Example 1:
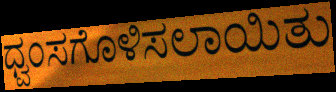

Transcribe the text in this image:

ಧ್ವಂಸಗೊಳಿಸಲಾಯಿತು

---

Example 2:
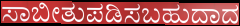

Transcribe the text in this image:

ಸಾಬೀತುಪಡಿಸಬಹುದಾದ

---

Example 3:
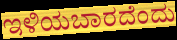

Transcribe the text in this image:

ಇಳಿಯಬಾರದೆಂದು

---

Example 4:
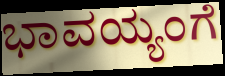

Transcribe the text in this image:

ಭಾವಯ್ಯಂಗೆ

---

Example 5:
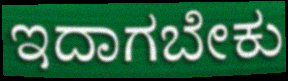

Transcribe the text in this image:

ಇದಾಗಬೇಕು